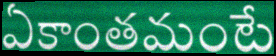
ఏకాంతమంటే